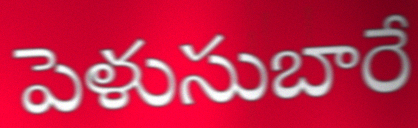
పెళుసుబారే